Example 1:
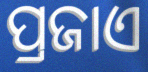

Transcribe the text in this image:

ପ୍ରଜାଏ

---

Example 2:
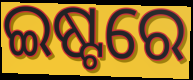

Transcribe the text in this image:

ଇଷ୍ଟରେ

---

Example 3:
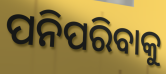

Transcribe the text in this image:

ପନିପରିବାକୁ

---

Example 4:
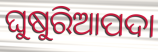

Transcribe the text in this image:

ଘୁଷୁରିଆପଦା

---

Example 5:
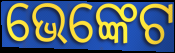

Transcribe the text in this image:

ଭେଙ୍କେଟ